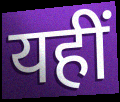
यहीं